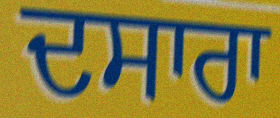
ਦਸਾਰਾ